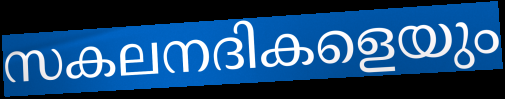
സകലനദികളെയും